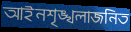
আইনশৃঙ্খলাজনিত